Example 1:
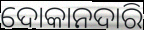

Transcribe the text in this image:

ଦୋକାନଦାରି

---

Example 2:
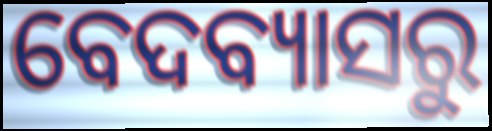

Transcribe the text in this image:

ବେଦବ୍ୟାସରୁ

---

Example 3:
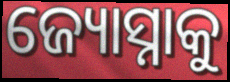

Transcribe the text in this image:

ଜ୍ୟୋସ୍ନାକୁ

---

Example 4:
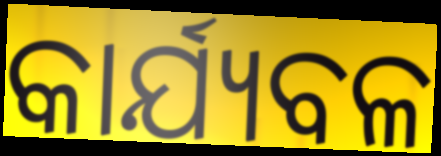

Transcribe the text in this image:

କାର୍ଯ୍ୟବଳ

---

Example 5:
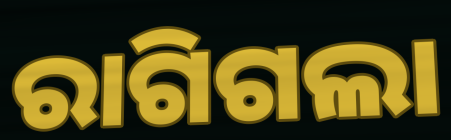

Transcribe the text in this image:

ରାଗିଗଲା